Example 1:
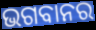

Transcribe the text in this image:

ଭଗବାନର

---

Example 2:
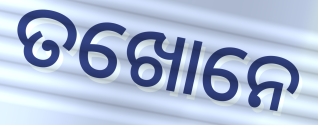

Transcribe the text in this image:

ତଖୋନେ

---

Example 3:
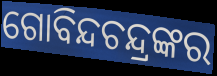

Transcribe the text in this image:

ଗୋବିନ୍ଦଚନ୍ଦ୍ରଙ୍କର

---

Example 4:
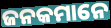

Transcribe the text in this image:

ଜନକମାନେ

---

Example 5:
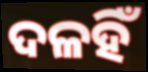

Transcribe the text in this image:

ଦଳହିଁ